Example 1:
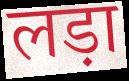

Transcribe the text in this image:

लड़ा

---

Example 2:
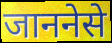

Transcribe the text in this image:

जाननेसे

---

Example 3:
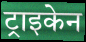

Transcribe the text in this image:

ट्राइकेन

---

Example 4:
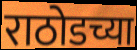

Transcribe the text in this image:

राठोडच्या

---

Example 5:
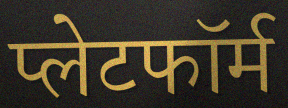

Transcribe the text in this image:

प्‍लेटफॉर्म